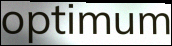
optimum